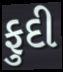
ફુદી